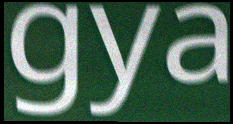
gya